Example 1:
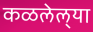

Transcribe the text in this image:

कळलेल्या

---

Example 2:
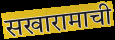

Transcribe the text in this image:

सखारामाची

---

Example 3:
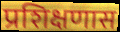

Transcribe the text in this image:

प्रशिक्षणास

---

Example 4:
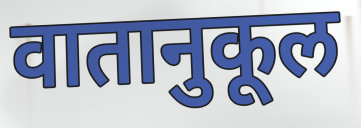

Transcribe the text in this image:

वातानुकूल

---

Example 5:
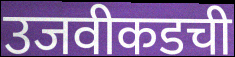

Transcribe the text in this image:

उजवीकडची